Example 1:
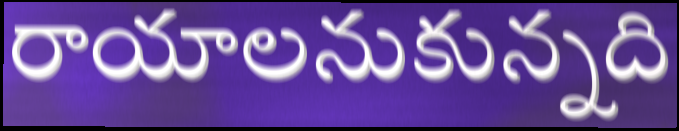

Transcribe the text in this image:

రాయాలనుకున్నది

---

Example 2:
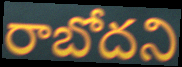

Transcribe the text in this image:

రాబోదని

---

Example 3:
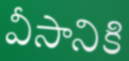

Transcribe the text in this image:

వీసానికి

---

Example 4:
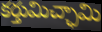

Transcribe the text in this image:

కర్తుమిచ్ఛామి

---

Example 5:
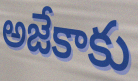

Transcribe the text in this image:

అజేకాకు